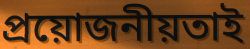
প্রয়োজনীয়তাই